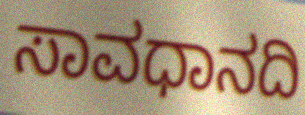
ಸಾವಧಾನದಿ